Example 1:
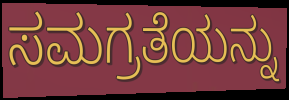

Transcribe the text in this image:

ಸಮಗ್ರತೆಯನ್ನು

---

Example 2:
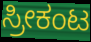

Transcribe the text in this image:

ಸ್ರೀಕಂಟ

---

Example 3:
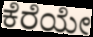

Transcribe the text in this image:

ಕೆರೆಯೇ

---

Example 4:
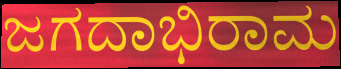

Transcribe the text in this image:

ಜಗದಾಭಿರಾಮ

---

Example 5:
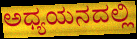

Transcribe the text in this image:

ಅಧ್ಯಯನದಲ್ಲಿ